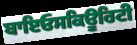
ਬਾਇਓਸਕਿਊਰਿਟੀ